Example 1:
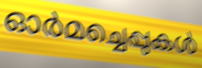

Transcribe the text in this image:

ഓർമച്ചെപ്പുകൾ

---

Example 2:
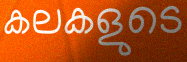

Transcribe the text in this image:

കലകളുടെ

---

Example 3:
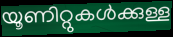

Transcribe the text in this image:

യൂണിറ്റുകൾക്കുള്ള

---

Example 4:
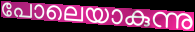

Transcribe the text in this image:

പോലെയാകുന്നു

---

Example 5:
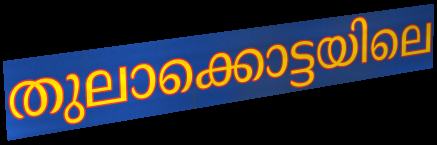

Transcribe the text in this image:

തുലാക്കൊട്ടയിലെ